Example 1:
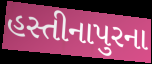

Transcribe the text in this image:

હસ્તીનાપુરના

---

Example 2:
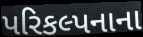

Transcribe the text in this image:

પરિકલ્પનાના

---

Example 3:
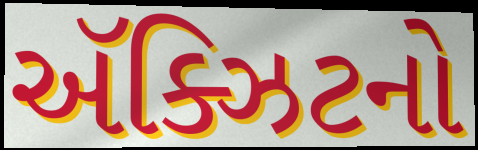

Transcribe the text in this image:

ઍક્ઝિટનો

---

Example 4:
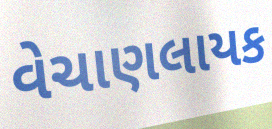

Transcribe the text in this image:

વેચાણલાયક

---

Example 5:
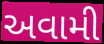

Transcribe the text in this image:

અવામી